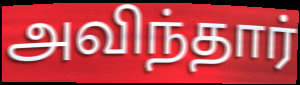
அவிந்தார்